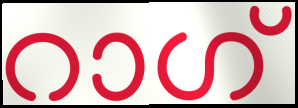
റാഗ്